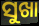
ସୁଖା